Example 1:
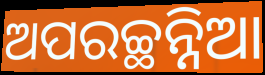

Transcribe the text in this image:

ଅପରଚ୍ଛନ୍ନିଆ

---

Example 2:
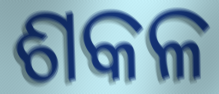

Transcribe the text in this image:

ଶକଳ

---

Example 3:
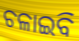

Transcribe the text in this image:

ଚଳାଇବି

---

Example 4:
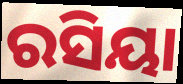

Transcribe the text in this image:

ରସିୟା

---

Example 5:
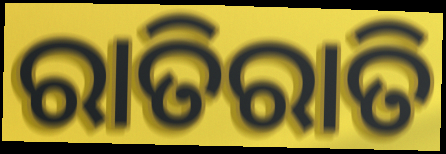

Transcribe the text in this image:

ରାତିରାତି